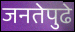
जनतेपुढे